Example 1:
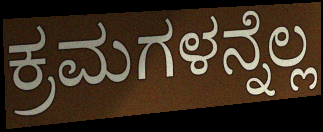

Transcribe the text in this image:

ಕ್ರಮಗಳನ್ನೆಲ್ಲ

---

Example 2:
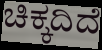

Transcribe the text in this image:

ಚಿಕ್ಕದಿದೆ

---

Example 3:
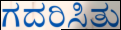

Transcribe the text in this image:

ಗದರಿಸಿತು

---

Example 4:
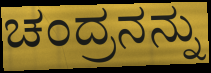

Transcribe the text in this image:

ಚಂದ್ರನನ್ನು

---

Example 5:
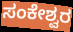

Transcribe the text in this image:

ಸಂಕೇಶ್ವರ